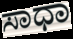
ಸಾಧಾ